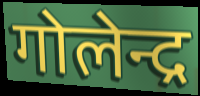
गोलेन्द्र